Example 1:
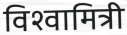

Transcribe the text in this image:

विश्वामित्री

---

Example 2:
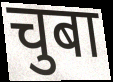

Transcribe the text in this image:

चुबा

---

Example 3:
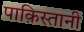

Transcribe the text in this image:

पाक़िस्तानी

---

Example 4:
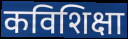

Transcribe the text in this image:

कविशिक्षा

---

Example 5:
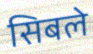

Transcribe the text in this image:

सिबले